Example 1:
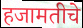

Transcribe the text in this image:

हजामतीचे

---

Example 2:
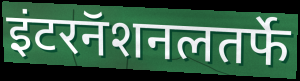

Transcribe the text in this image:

इंटरनॅशनलतर्फे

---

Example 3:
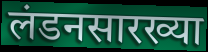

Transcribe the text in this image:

लंडनसारख्या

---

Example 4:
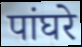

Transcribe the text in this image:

पांघरे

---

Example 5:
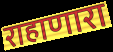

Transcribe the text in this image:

राहाणारा